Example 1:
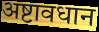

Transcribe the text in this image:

अष्टावधान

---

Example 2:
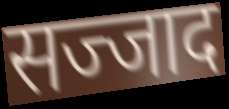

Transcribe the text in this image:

सज्जाद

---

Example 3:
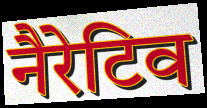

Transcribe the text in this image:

नैरेटिव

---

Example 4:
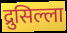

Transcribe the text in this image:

द्रुसिल्ला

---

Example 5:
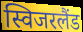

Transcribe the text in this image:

स्विजरलैंड